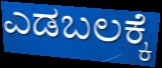
ಎಡಬಲಕ್ಕೆ